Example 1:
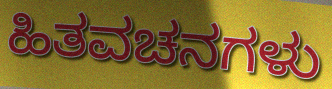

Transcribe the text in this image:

ಹಿತವಚನಗಳು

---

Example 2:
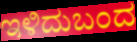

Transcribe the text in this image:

ಇಳಿದುಬಂದ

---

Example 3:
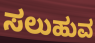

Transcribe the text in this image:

ಸಲುಹುವ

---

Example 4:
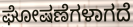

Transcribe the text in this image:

ಘೋಷಣೆಗಳಾಗದೆ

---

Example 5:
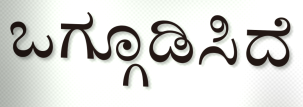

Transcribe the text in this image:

ಒಗ್ಗೂಡಿಸಿದೆ